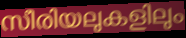
സീരിയലുകളിലും